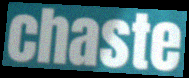
chaste